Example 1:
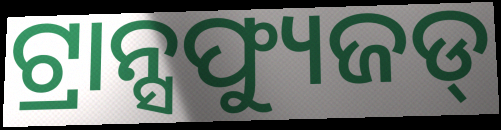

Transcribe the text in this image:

ଟ୍ରାନ୍ସଫ୍ୟୁଜଡ୍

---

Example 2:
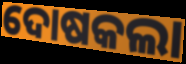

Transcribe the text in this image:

ଦୋଷକଲା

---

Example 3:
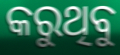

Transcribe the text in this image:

କରୁଥିବୁ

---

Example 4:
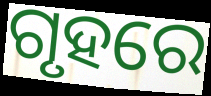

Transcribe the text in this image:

ଗୃହରେ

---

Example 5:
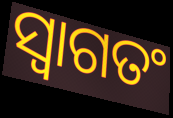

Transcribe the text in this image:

ସ୍ୱାଗତଂ